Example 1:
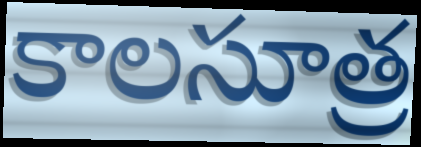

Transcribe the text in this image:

కాలసూత్ర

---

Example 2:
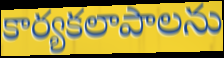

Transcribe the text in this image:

కార్యకలాపాలను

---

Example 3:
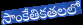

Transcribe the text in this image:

సాంకేతికతలలో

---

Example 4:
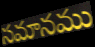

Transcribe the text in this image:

సమానము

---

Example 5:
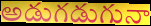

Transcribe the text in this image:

అడుగడుగునా